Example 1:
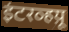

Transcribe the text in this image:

इंटरव्हय़ू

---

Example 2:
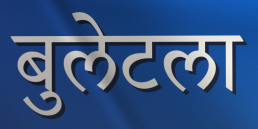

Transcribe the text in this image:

बुलेटला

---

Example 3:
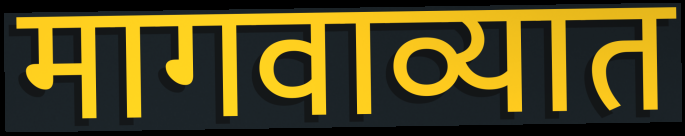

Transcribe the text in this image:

मागवाव्यात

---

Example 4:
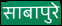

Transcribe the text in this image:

साबापुरे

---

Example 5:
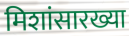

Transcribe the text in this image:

मिशांसारख्या